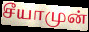
சீயாமுன்